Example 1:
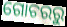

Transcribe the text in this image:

ଗୋଚରରୁ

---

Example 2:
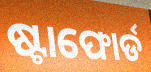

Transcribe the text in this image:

ଷ୍ଟାଫୋର୍ଡ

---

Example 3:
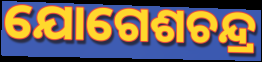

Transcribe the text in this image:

ଯୋଗେଶଚନ୍ଦ୍ର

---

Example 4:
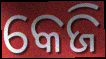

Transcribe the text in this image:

କେଜି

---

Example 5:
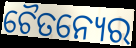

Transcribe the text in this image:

ଚୈତନ୍ୟେର